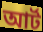
আর্ট